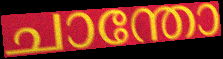
ചാന്തോ